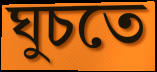
ঘুচতে